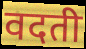
वदती